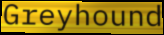
Greyhound